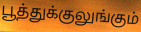
பூத்துக்குலுங்கும்